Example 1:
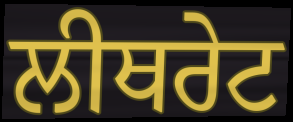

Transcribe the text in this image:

ਲੀਥਰੇਟ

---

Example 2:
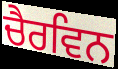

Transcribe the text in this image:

ਚੈਰਵਿਨ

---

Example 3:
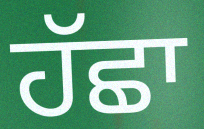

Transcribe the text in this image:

ਹੱਛਾ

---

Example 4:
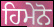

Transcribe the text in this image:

ਹਿਮੇਨੋ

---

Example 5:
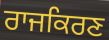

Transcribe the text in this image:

ਰਾਜਕਿਰਣ